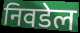
निवडेल